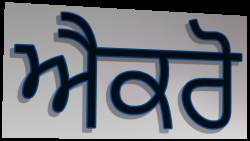
ਐਕਰੋ